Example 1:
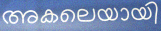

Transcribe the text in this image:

അകലെയായി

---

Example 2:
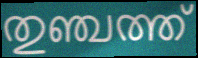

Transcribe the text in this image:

തുഞ്ചത്ത്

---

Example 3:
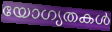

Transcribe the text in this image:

യോഗ്യതകൾ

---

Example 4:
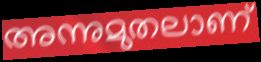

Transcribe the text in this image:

അന്നുമുതലാണ്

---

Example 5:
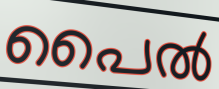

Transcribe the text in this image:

പൈൽ